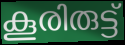
കൂരിരുട്ട്